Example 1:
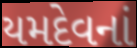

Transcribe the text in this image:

યમદેવનાં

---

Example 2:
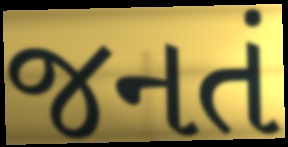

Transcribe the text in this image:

જનતં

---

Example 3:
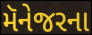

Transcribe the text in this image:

મૅનેજરના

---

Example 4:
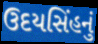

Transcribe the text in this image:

ઉદયસિંહનું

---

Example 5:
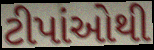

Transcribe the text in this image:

ટીપાંઓથી